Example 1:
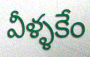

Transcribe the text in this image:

వీళ్ళకేం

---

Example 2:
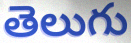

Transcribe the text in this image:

తెలుగు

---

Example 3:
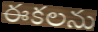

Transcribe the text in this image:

ఈకలను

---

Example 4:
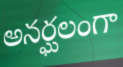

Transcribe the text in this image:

అనర్ఘలంగా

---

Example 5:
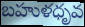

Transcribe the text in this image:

బహుళధృవ